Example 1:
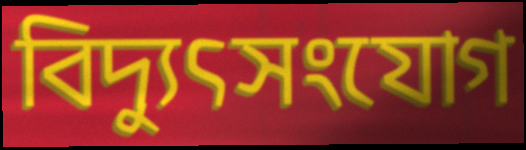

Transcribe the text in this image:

বিদ্যুৎসংযোগ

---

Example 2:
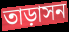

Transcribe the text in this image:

তাড়াসন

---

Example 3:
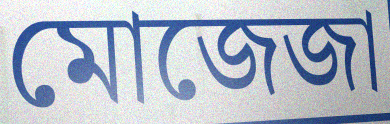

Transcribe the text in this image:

মোজেজা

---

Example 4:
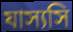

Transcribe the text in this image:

যাস্যসি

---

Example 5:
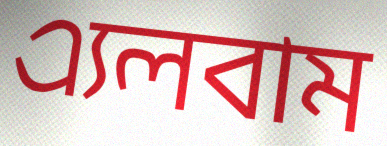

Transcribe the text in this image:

এ্যলবাম